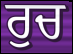
ਰੁਚ